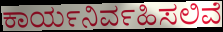
ಕಾರ್ಯನಿರ್ವಹಿಸಲಿವೆ